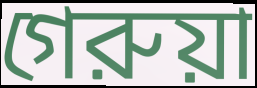
গেরুয়া